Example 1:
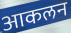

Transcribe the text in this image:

आकलन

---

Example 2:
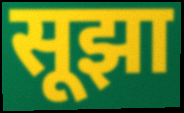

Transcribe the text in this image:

सूझा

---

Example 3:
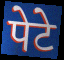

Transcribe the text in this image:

पेटे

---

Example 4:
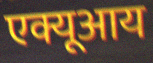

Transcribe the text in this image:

एक्यूआय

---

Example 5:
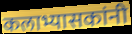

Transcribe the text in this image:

कलाभ्यासकांनी